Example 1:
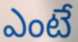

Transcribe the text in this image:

ఎంటే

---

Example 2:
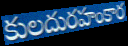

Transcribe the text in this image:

కులదురహంకార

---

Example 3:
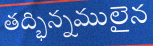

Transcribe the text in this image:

తద్భిన్నములైన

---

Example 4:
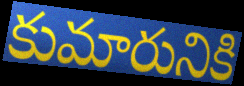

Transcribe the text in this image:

కుమారునికి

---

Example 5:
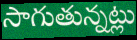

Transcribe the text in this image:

సాగుతున్నట్లు